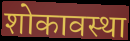
शोकावस्था